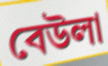
বেউলা